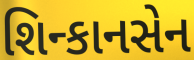
શિન્કાનસેન